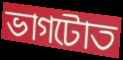
ভাগটোত